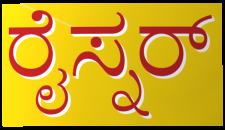
ರೈಸ್ನರ್